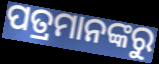
ପତ୍ରମାନଙ୍କରୁ